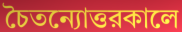
চৈতন্যোত্তরকালে